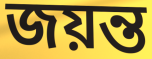
জয়ন্ত